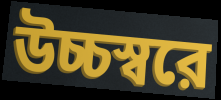
উচ্চস্বরে